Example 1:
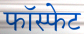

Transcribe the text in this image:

फॉस्फेट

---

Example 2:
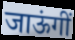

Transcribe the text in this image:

जाऊंगीं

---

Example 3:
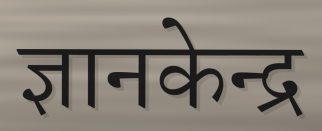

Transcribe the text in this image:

ज्ञानकेन्द्र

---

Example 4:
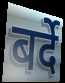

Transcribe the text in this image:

बर्दे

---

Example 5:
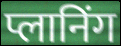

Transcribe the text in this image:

प्लानिंग